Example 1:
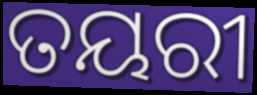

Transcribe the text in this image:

ତୟରୀ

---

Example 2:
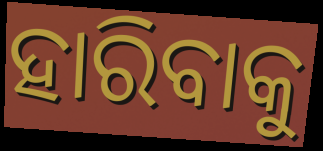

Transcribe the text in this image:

ହାରିବାକୁ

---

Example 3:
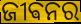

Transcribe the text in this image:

ଜୀଵନର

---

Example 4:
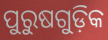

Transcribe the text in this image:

ପୁରୁଷଗୁଡ଼ିକ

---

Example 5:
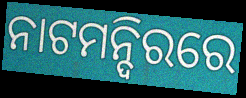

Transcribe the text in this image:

ନାଟମନ୍ଦିରରେ